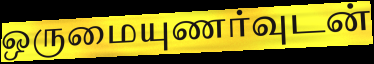
ஒருமையுணர்வுடன்